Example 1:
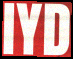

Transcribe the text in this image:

IYD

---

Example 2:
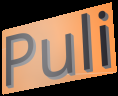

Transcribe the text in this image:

Puli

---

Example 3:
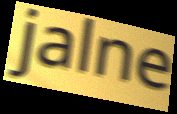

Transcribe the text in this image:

jalne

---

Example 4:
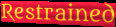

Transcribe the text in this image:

Restrained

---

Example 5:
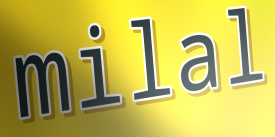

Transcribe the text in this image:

milal